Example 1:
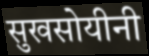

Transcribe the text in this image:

सुखसोयीनी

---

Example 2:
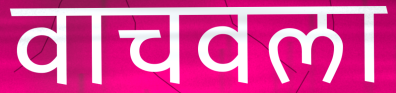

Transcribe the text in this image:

वाचवला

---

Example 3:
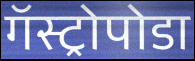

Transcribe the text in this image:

गॅस्ट्रोपोडा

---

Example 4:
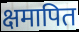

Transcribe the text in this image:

क्षमापित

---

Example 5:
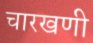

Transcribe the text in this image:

चारखणी